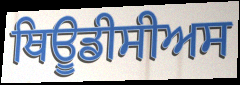
ਥਿਊਡੀਸੀਅਸ